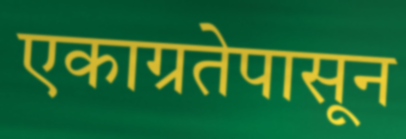
एकाग्रतेपासून